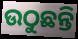
ଉଠୁଛନ୍ତି